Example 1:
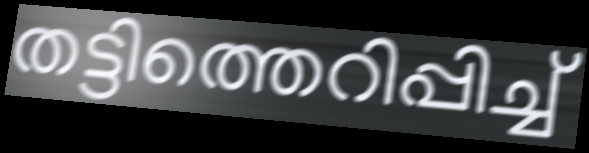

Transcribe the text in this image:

തട്ടിത്തെറിപ്പിച്ച്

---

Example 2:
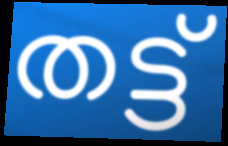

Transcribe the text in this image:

തട്ട്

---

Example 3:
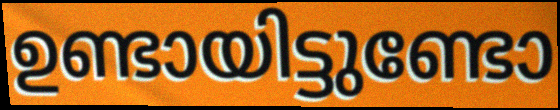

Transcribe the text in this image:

ഉണ്ടായിട്ടുണ്ടോ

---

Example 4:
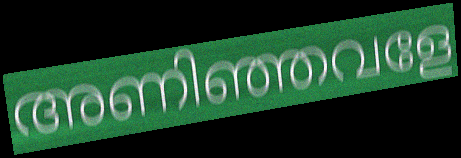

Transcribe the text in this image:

അണിഞ്ഞവളേ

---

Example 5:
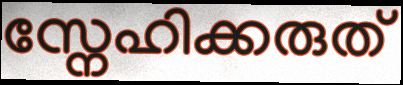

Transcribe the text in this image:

സ്നേഹിക്കരുത്